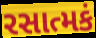
રસાત્મકં